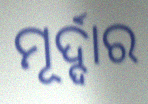
ମୂର୍ଦ୍ଦାର